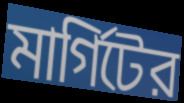
মার্গিটের